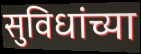
सुविधांच्या